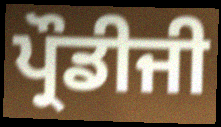
ਪ੍ਰੌਡੀਜੀ